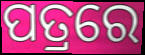
ପତ୍ରରେ